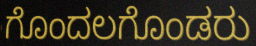
ಗೊಂದಲಗೊಂಡರು